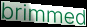
brimmed